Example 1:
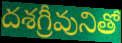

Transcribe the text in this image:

దశగ్రీవునితో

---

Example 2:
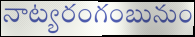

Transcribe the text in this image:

నాట్యరంగంబునుం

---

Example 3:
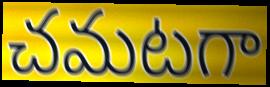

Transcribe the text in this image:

చమటగా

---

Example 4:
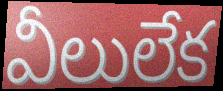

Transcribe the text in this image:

వీలులేక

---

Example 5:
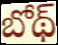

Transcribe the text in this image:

బోథ్